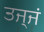
ਤਜ੍ਜਂ